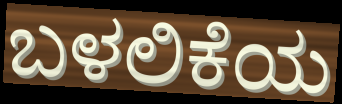
ಬಳಲಿಕೆಯ